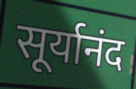
सूर्यानंद